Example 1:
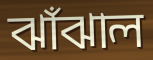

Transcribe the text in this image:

ঝাঁঝাল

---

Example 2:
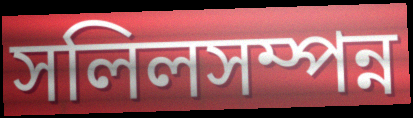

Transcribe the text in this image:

সলিলসম্পন্ন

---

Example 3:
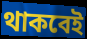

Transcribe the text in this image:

থাকবেই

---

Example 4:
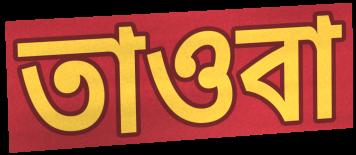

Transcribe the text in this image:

তাওবা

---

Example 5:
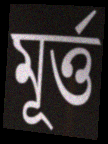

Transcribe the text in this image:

মূর্ত্ত